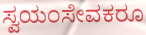
ಸ್ವಯಂಸೇವಕರೂ